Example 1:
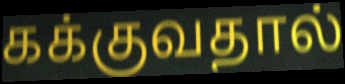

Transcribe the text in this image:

கக்குவதால்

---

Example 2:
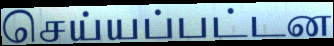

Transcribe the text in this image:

செய்யப்பட்டன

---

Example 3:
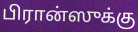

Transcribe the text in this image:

பிரான்ஸுக்கு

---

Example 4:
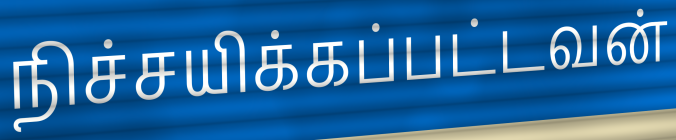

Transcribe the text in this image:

நிச்சயிக்கப்பட்டவன்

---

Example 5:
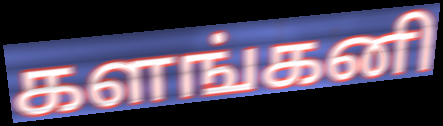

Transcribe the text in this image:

களங்கனி